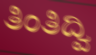
ತಿಂತಿದ್ವಿ